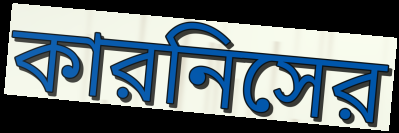
কারনিসের